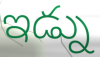
ఇడ్ను